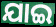
ଯାଇ